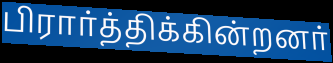
பிரார்த்திக்கின்றனர்